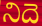
నిదె